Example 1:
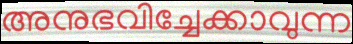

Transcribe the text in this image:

അനുഭവിച്ചേക്കാവുന്ന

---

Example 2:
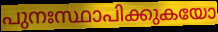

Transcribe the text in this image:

പുനഃസ്ഥാപിക്കുകയോ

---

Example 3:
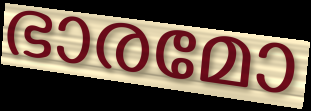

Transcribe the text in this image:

ഭാരമോ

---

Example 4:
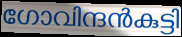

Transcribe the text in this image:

ഗോവിന്ദൻകുട്ടി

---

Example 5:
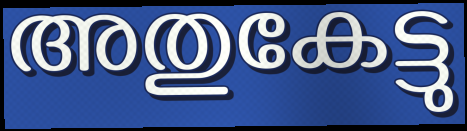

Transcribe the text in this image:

അതുകേട്ടു